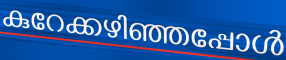
കുറേക്കഴിഞ്ഞപ്പോൾ